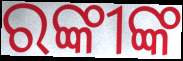
ରଙ୍କୀଙ୍କ